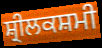
ਸ਼੍ਰੀਲਕਸ਼ਮੀ